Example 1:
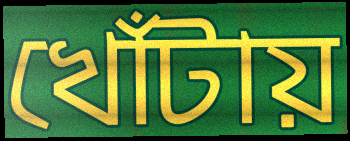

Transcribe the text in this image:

খোঁটায়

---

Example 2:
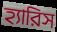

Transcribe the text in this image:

হ্যারিস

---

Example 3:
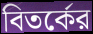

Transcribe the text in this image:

বিতর্কের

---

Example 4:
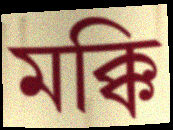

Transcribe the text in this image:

মক্কি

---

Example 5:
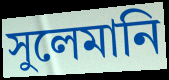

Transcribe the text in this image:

সুলেমানি